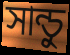
সান্ডু